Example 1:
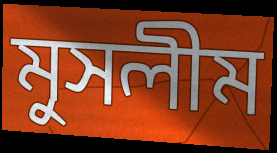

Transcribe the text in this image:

মুসলীম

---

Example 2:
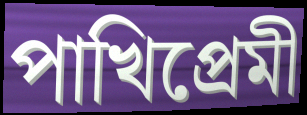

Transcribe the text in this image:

পাখিপ্রেমী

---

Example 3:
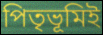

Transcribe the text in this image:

পিতৃভূমিই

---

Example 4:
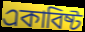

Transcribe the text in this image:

একাবিষ্ট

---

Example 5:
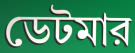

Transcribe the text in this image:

ডেটমার